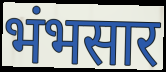
भंभसार